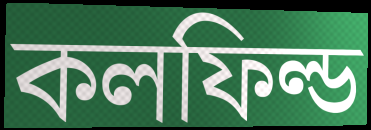
কলফিল্ড